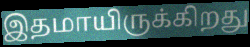
இதமாயிருக்கிறது